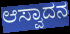
ಆಸ್ವಾದನ